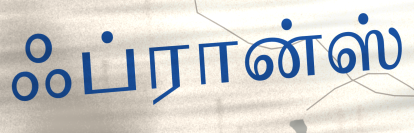
ஃப்ரான்ஸ்